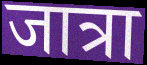
जात्रा